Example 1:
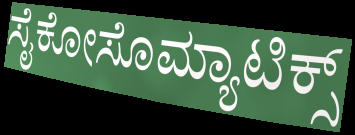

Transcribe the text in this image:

ಸೈಕೋಸೊಮ್ಯಾಟಿಕ್ಸ್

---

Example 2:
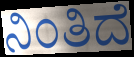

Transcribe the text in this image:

ನಿಂತಿದೆ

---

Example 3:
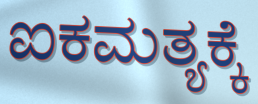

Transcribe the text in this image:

ಐಕಮತ್ಯಕ್ಕೆ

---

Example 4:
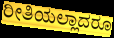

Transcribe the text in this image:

ರೀತಿಯಲ್ಲಾದರೂ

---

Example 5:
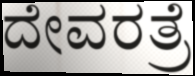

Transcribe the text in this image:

ದೇವರತ್ರೆ